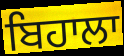
ਬਿਹਾਲਾ